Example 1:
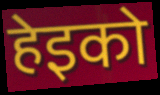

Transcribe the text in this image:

हेइको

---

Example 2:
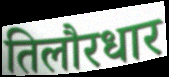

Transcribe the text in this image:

तिलौरधार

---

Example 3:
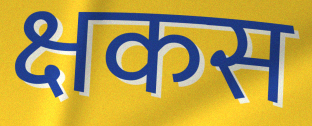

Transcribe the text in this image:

क्षकस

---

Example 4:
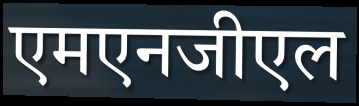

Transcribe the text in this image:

एमएनजीएल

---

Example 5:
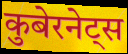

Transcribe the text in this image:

कुबेरनेट्स